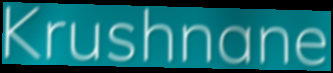
Krushnane